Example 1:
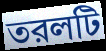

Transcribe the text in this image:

তরলটি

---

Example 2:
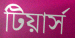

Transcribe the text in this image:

টিয়ার্স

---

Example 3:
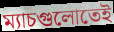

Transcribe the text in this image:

ম্যাচগুলোতেই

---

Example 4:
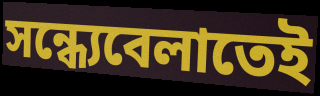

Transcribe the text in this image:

সন্ধ্যেবেলাতেই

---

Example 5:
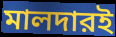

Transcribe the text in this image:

মালদারই